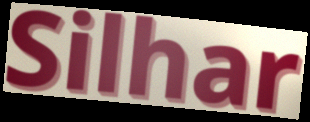
Silhar